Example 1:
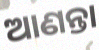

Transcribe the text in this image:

ଆଣନ୍ତା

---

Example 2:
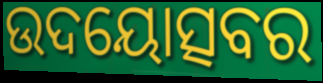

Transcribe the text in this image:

ଉଦୟୋତ୍ସବର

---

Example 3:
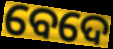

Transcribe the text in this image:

ବେଦେ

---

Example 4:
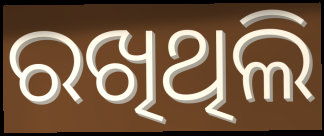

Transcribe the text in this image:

ରଖିଥିଲି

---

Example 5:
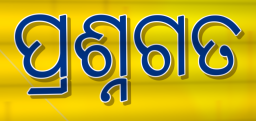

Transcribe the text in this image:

ପ୍ରଶ୍ନଗତ